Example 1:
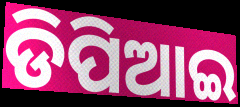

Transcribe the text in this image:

ଡିପିଆଇ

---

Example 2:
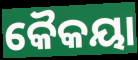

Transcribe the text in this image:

କୈକୟା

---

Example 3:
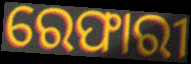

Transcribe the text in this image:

ରେଫାରୀ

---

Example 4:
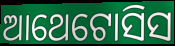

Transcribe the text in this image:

ଆଥେଟୋସିସ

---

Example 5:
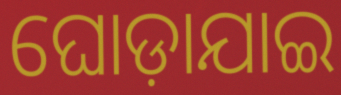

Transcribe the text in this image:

ଘୋଡ଼ାଯାଇ